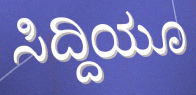
ಸಿದ್ದಿಯೂ